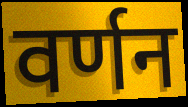
वर्णन